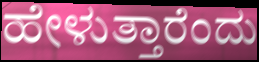
ಹೇಳುತ್ತಾರೆಂದು